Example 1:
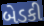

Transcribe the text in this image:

બેડકી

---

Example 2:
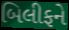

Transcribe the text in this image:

બિલીફને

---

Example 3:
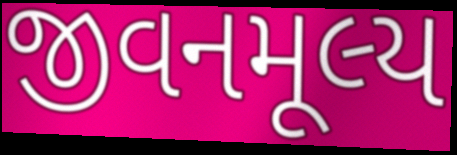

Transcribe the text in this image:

જીવનમૂલ્ય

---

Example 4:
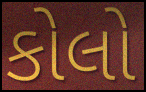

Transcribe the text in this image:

કોલો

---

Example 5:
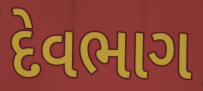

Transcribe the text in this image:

દેવભાગ